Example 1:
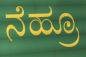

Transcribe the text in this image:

ನೆಹ್ರೂ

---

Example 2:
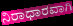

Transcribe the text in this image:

ನಿರಾಧಾರವಾಗಿ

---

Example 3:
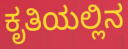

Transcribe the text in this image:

ಕೃತಿಯಲ್ಲಿನ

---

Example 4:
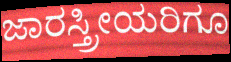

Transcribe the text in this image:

ಜಾರಸ್ತ್ರೀಯರಿಗೂ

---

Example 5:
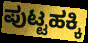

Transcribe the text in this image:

ಪುಟ್ಟಹಕ್ಕಿ